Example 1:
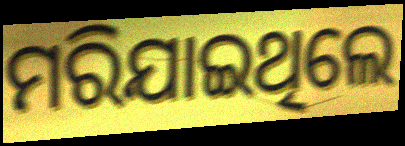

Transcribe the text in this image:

ମରିଯାଇଥିଲେ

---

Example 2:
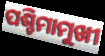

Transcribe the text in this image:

ପଶ୍ଚିମାମୁଖୀ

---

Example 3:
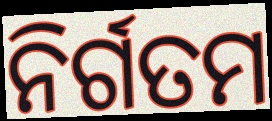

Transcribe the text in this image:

ନିର୍ଗତମ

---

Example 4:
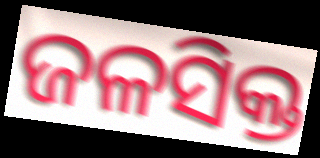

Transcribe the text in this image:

ଜଳସିକ୍ତ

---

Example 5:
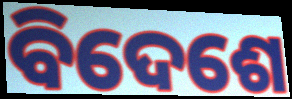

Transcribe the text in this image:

ବିଦେଶେ